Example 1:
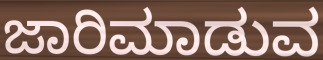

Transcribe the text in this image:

ಜಾರಿಮಾಡುವ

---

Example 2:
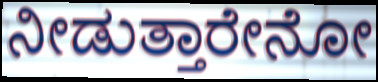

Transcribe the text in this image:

ನೀಡುತ್ತಾರೇನೋ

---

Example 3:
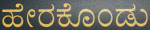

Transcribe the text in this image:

ಹೇರಕೊಂಡು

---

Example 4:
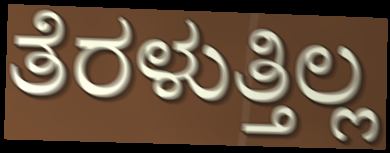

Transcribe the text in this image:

ತೆರಳುತ್ತಿಲ್ಲ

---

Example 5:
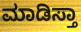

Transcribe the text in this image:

ಮಾಡಿಸ್ತಾ